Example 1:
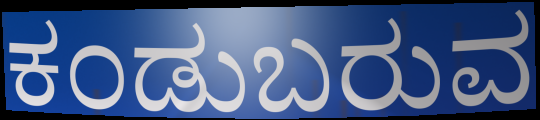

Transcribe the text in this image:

ಕಂಡುಬರುವ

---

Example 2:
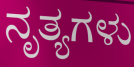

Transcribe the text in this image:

ನೃತ್ಯಗಳು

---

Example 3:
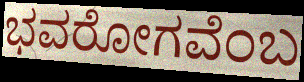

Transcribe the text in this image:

ಭವರೋಗವೆಂಬ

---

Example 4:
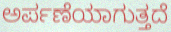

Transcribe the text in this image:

ಅರ್ಪಣೆಯಾಗುತ್ತದೆ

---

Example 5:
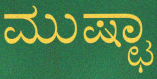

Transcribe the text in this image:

ಮುಷ್ಟಾ